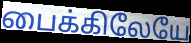
பைக்கிலேயே